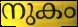
നുകം